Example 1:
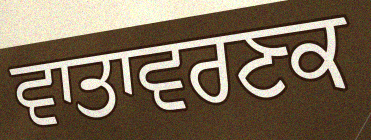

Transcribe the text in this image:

ਵਾਤਾਵਰਣਕ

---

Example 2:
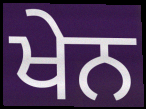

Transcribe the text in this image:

ਖੇਨ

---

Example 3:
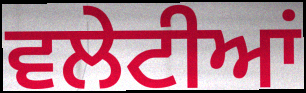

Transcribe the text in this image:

ਵਲੇਟੀਆਂ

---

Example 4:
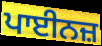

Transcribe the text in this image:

ਪਾਈਨਜ਼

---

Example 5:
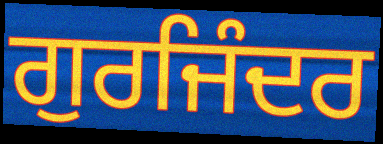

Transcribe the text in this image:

ਗੁਰਜਿੰਦਰ